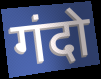
गंदो